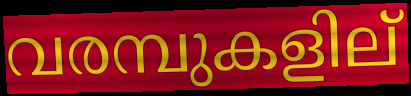
വരമ്പുകളില്